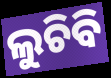
ଲୁଚିବି